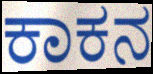
ಕಾಕನ